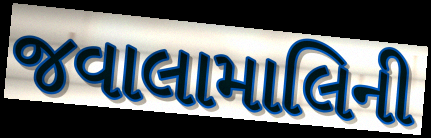
જવાલામાલિની